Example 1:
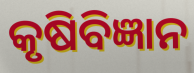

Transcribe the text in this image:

କୃଷିବିଜ୍ଞାନ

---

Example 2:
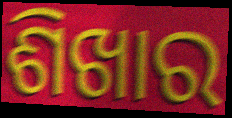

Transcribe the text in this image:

ଶିଖାର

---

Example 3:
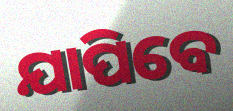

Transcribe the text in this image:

ଯାପିବେ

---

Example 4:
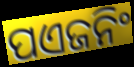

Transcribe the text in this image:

ପଏଜନିଂ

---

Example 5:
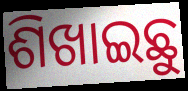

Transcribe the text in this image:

ଶିଖାଇଛୁ